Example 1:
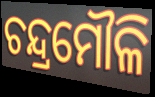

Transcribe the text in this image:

ଚନ୍ଦ୍ରମୌଳି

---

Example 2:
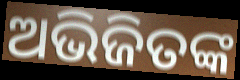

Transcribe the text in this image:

ଅଭିଜିତଙ୍କ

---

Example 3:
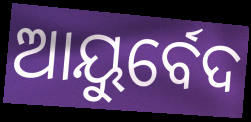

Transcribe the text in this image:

ଆୟୁର୍ବେଦ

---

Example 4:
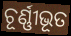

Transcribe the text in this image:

ଚୂର୍ଣ୍ଣୀଭୂତ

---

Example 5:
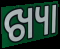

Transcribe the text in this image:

ଖ୍ୟା